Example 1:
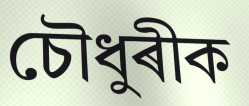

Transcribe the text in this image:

চৌধুৰীক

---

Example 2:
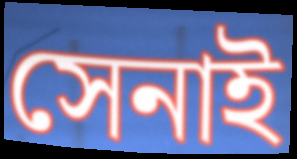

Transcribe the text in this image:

সেনাই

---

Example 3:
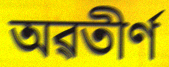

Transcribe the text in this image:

অৱতীৰ্ণ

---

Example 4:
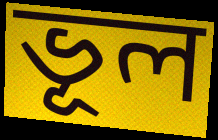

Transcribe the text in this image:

ভূল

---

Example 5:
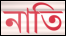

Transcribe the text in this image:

নাতি